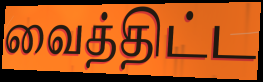
வைத்திட்ட